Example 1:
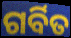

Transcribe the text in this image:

ଗର୍ବିତ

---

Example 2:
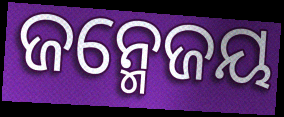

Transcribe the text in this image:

ଜନ୍ମେଜୟ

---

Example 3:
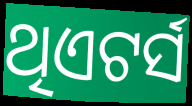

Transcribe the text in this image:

ଥିଏଟର୍ସ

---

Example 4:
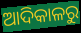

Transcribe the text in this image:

ଆଦିକାଳରୁ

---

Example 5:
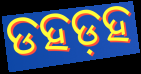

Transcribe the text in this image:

ଡହଡ଼ହ